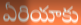
ఏరియాకు